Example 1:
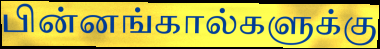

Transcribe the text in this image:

பின்னங்கால்களுக்கு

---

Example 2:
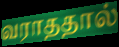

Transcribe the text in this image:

வராததால்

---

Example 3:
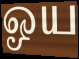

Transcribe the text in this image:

ஓய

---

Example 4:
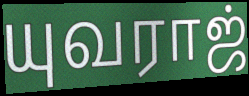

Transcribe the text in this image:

யுவராஜ்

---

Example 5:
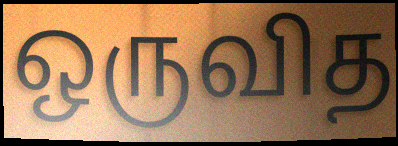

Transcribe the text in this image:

ஒருவித